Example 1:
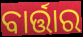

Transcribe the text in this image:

ବାର୍ତ୍ତାର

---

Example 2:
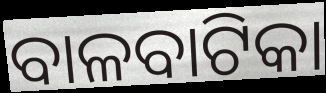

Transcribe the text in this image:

ବାଳବାଟିକା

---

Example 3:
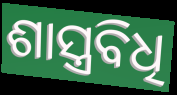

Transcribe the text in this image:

ଶାସ୍ତ୍ରବିଧି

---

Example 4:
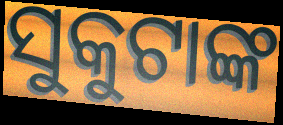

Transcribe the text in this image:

ସୁକୁଟାଙ୍କ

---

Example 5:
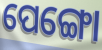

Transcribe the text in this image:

ପେଙ୍ଗୋ